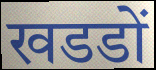
खडडों